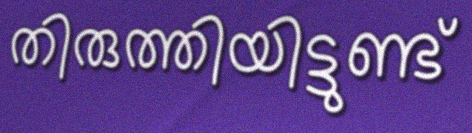
തിരുത്തിയിട്ടുണ്ട്